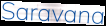
Saravana